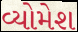
વ્યોમેશ